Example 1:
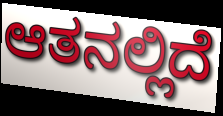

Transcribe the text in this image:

ಆತನಲ್ಲಿದೆ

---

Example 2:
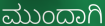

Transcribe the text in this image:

ಮುಂದಾಗಿ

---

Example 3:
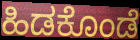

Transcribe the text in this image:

ಹಿಡಕೊಂಡೆ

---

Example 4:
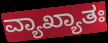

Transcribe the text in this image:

ವ್ಯಾಖ್ಯಾತಃ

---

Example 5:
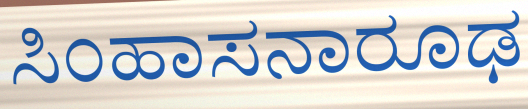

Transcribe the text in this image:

ಸಿಂಹಾಸನಾರೂಢ